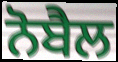
ਨੋਬੈਲ